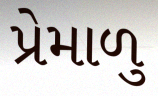
પ્રેમાળુ